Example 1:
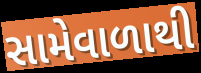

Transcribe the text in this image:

સામેવાળાથી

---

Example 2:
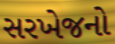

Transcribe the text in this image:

સરખેજનો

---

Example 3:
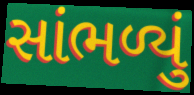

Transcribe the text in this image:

સાંભળ્યું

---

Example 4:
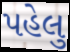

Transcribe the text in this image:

પહેલુ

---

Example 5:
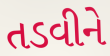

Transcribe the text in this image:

તડવીને